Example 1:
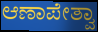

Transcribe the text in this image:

ಆಣಾಪೇತ್ವಾ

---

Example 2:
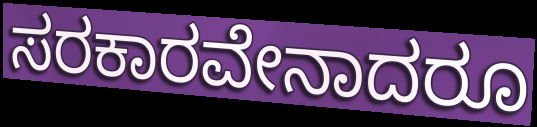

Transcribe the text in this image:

ಸರಕಾರವೇನಾದರೂ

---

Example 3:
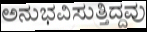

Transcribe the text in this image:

ಅನುಭವಿಸುತ್ತಿದ್ದವು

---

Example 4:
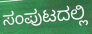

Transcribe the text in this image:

ಸಂಪುಟದಲ್ಲಿ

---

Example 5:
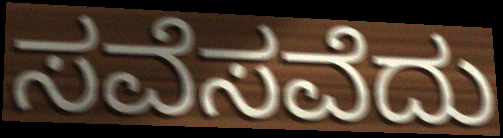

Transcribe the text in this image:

ಸವೆಸವೆದು